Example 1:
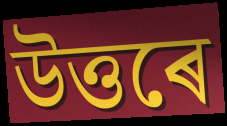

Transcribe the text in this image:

উত্তৰে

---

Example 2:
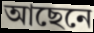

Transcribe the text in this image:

আছেনে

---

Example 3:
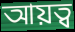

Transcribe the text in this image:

আয়ত্ব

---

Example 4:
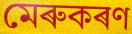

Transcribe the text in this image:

মেৰুকৰণ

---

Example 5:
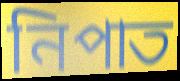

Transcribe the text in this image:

নিপাত